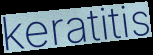
keratitis